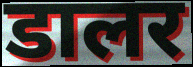
डालर